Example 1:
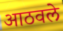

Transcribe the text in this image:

आठवले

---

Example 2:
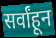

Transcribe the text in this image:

सर्वांहून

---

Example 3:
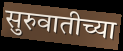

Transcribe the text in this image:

सुरुवातीच्या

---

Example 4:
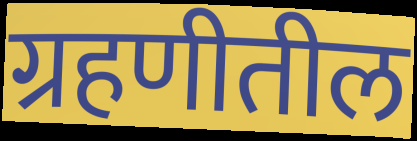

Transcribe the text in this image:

ग्रहणीतील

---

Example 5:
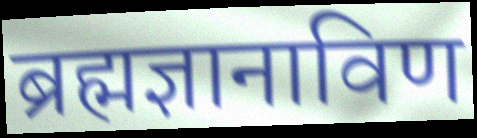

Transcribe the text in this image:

ब्रह्मज्ञानाविण